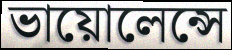
ভায়োলেন্সে